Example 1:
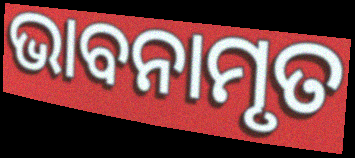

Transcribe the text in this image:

ଭାବନାମୃତ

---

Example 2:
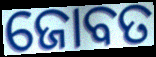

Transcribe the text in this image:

ଜୋବତ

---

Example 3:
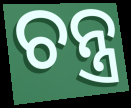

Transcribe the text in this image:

ଚନ୍ତ୍ର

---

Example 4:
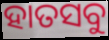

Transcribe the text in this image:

ହାତସବୁ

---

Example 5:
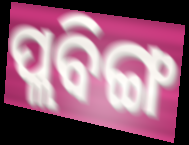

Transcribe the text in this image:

ପ୍ଲବିଙ୍ଗ